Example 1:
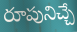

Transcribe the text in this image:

రూపునిచ్చే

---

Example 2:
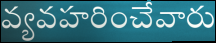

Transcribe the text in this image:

వ్యవహరించేవారు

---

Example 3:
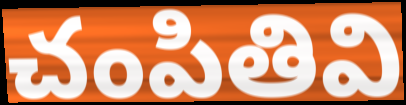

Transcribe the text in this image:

చంపితివి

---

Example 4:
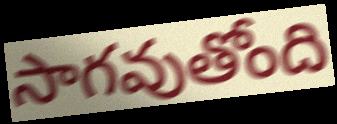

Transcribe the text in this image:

సాగవుతోంది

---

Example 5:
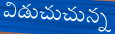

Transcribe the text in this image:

విడుచుచున్న